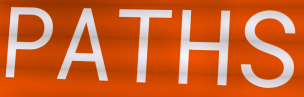
PATHS